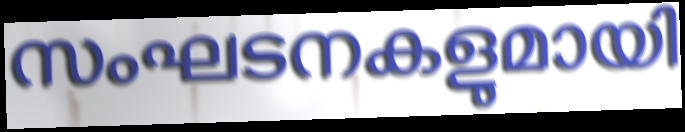
സംഘടനകളുമായി